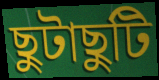
ছুটাছুটি